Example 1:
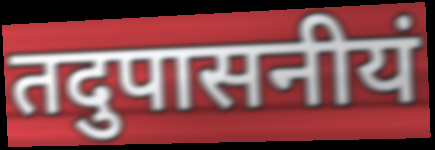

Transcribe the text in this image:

तदुपासनीयं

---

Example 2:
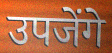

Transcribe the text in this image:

उपजेंगे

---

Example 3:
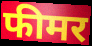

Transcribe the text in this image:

फीमर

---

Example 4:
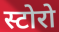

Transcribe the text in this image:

स्टोरो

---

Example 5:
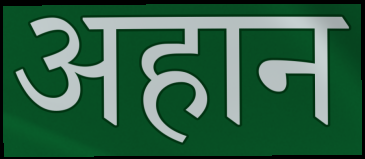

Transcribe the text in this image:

अहान